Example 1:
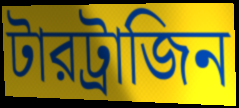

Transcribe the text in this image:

টারট্রাজিন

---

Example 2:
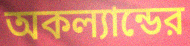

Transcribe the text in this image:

অকল্যান্ডের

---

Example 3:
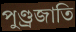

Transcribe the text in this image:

পুণ্ড্রজাতি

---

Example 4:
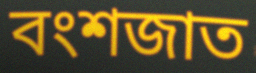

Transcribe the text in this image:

বংশজাত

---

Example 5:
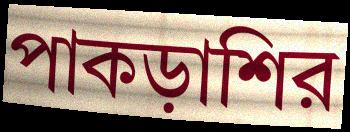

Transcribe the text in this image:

পাকড়াশির